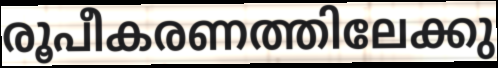
രൂപീകരണത്തിലേക്കു